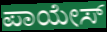
ಪಾಯೇಸ್